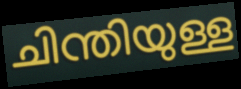
ചിന്തിയുള്ള